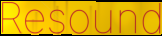
Resound